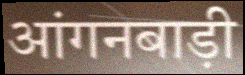
आंगनबाड़ी